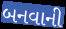
બનવાની